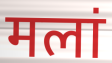
मलां